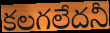
కలగలేదనీ